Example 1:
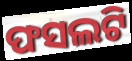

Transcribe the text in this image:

ଫସଲଟି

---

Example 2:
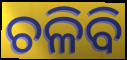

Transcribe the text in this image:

ଚଳିବି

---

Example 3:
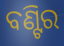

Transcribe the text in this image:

ବଣ୍ଟିର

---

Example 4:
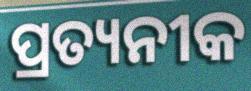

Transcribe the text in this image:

ପ୍ରତ୍ୟନୀକ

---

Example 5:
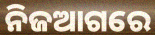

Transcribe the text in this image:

ନିଜଆଗରେ